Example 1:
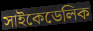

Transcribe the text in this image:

সাইকেডেলিক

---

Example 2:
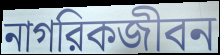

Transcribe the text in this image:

নাগরিকজীবন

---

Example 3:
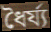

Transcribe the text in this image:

ধৈর্য্য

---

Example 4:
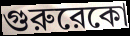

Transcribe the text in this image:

গুরুরেকো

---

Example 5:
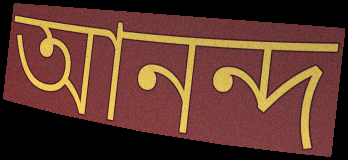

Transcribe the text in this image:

আনন্দ